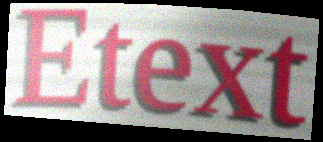
Etext